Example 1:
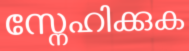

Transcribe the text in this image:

സ്നേഹിക്കുക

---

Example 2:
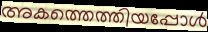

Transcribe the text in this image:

അകത്തെത്തിയപ്പോൾ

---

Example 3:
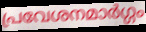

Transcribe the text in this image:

പ്രവേശനമാർഗ്ഗം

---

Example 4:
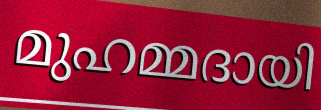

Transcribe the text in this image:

മുഹമ്മദായി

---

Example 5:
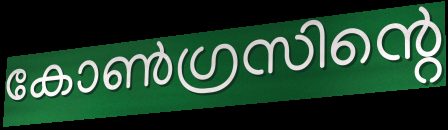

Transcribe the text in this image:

കോൺഗ്രസിന്റെ